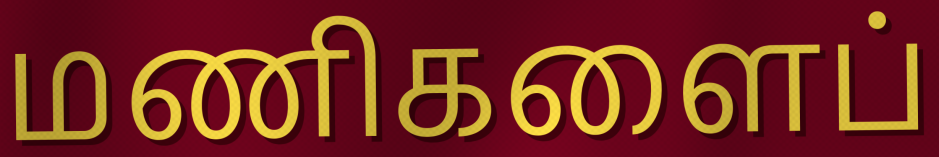
மணிகளைப்